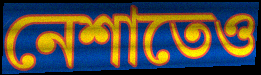
নেশাতেও